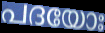
പദയോഃ